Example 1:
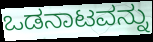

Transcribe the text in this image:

ಒಡನಾಟವನ್ನು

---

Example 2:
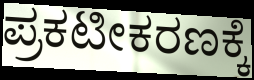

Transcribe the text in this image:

ಪ್ರಕಟೀಕರಣಕ್ಕೆ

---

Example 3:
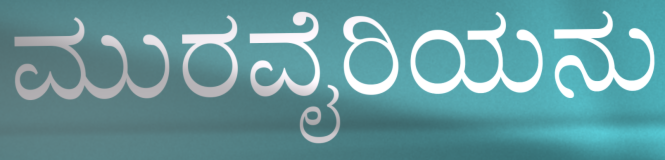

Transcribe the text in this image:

ಮುರವೈರಿಯನು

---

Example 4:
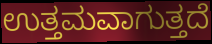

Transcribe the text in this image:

ಉತ್ತಮವಾಗುತ್ತದೆ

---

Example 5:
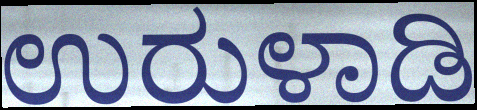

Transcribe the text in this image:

ಉರುಳಾಡಿ